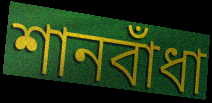
শানবাঁধা